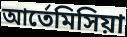
আর্তেমিসিয়া